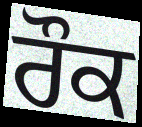
ਰੌਕ